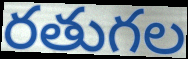
రతుగల